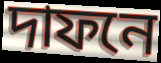
দাফনে